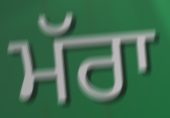
ਮੱਰਾ